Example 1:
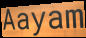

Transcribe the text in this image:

Aayam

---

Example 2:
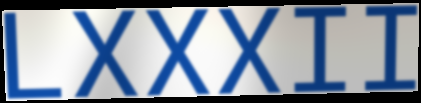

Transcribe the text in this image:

LXXXII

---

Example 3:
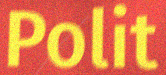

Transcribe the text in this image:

Polit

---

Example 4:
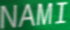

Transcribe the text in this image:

NAMI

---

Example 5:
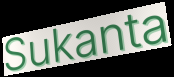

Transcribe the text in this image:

Sukanta